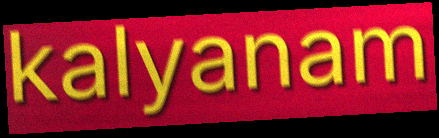
kalyanam